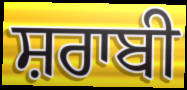
ਸ਼ਰਾਬੀ